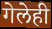
गेलेही